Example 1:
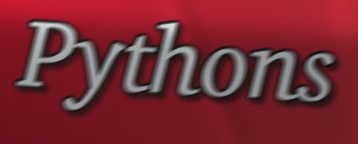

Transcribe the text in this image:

Pythons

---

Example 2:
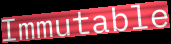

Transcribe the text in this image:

Immutable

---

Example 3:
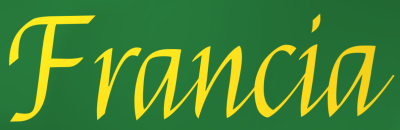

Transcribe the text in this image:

Francia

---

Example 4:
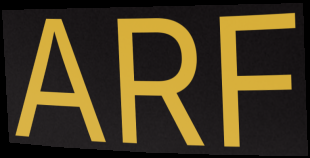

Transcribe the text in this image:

ARF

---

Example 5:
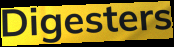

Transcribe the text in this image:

Digesters